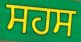
ਸਹਸ